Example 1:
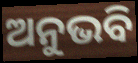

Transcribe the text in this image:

ଅନୁଭବି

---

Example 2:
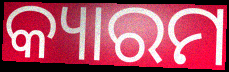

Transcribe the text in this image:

କ୍ୟାରମ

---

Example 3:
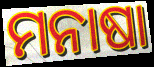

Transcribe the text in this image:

ମନାଷା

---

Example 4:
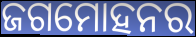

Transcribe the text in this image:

ଜଗମୋହନର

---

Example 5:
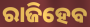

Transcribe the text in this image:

ରାଜିହେବ